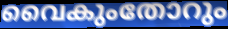
വൈകുംതോറും